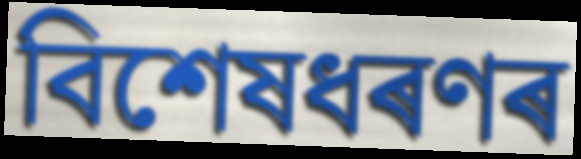
বিশেষধৰণৰ